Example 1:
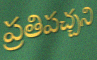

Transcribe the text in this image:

ప్రతిపచ్చని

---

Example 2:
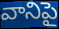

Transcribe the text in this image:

వానిపై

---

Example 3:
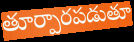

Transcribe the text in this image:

తూర్పారపడుతూ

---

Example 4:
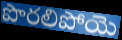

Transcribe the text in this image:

పొరలిపోయె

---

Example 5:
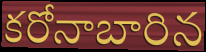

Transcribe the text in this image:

కరోనాబారిన